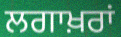
ਲਗਾਖ਼ਰਾਂ